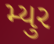
મ્યુર